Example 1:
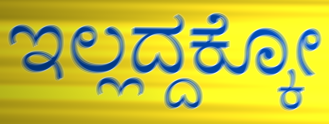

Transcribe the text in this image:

ಇಲ್ಲದ್ದಕ್ಕೋ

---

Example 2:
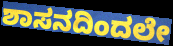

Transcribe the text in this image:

ಶಾಸನದಿಂದಲೇ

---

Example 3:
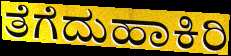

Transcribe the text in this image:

ತೆಗೆದುಹಾಕಿರಿ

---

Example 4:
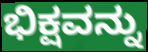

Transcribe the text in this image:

ಭಿಕ್ಷವನ್ನು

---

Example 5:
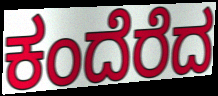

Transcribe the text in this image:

ಕಂದೆರೆದ